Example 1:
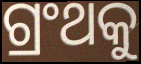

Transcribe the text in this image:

ଗ୍ରଂଥକୁ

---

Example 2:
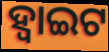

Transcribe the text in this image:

ହ୍ୱାଇଟ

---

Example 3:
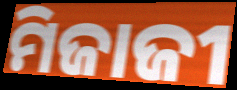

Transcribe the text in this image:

ମିଜାଜୀ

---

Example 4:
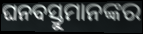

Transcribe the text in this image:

ଘନବସ୍ତୁମାନଙ୍କର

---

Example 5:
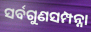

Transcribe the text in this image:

ସର୍ବଗୁଣସମ୍ପନ୍ନା